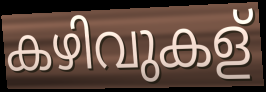
കഴിവുകള്